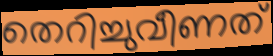
തെറിച്ചുവീണത്